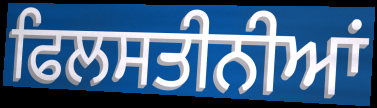
ਫਿਲਸਤੀਨੀਆਂ